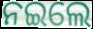
ନଇଲେ